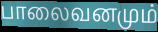
பாலைவனமும்